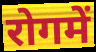
रोगमें